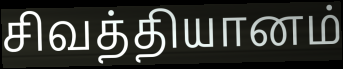
சிவத்தியானம்